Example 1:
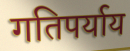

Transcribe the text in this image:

गतिपर्याय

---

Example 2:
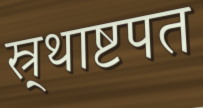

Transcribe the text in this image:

स्र्थाष्टपत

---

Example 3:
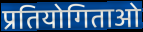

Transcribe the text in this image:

प्रतियोगिताओ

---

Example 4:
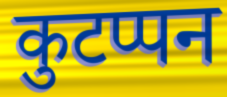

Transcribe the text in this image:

कुटप्पन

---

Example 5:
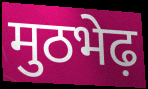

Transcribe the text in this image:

मुठभेढ़